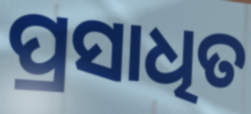
ପ୍ରସାଧିତ